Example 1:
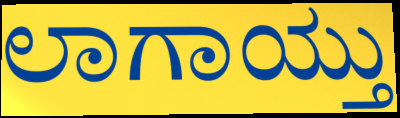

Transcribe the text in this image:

ಲಾಗಾಯ್ತು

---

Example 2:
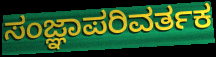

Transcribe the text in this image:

ಸಂಜ್ಞಾಪರಿವರ್ತಕ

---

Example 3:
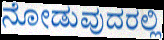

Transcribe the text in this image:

ನೋಡುವುದರಲ್ಲಿ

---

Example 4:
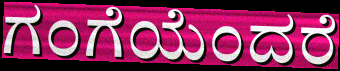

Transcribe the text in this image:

ಗಂಗೆಯೆಂದರೆ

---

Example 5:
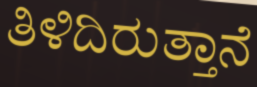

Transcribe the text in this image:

ತಿಳಿದಿರುತ್ತಾನೆ